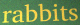
rabbits